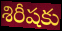
శిరీషకు